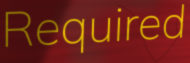
Required